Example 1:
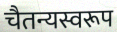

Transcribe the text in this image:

चैतन्यस्वरूप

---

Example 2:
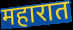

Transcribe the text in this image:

महारात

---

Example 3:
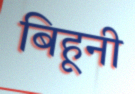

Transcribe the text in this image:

बिहूनी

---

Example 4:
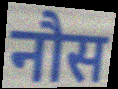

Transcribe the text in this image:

नौस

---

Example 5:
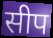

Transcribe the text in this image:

सीप